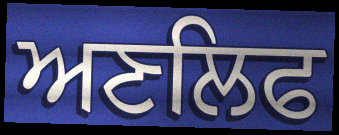
ਅਣਲਿਫ